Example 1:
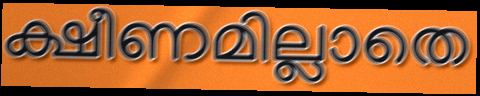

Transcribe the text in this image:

ക്ഷീണമില്ലാതെ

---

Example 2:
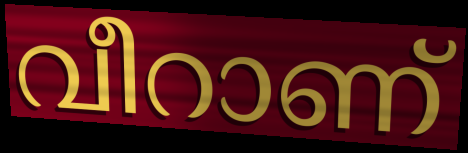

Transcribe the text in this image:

വീറാണ്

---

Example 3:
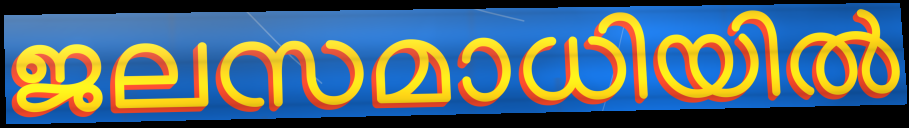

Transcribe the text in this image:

ജലസമാധിയിൽ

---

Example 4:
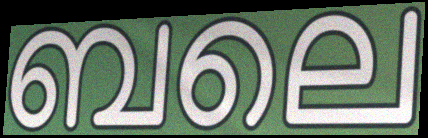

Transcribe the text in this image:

ബലെ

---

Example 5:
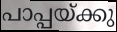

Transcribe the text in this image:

പാപ്പയ്ക്കു